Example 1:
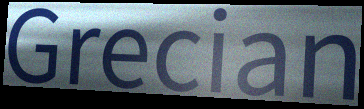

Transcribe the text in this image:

Grecian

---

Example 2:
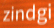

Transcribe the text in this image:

zindgi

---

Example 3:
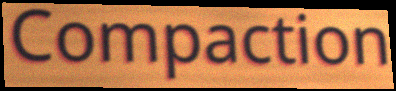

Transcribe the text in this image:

Compaction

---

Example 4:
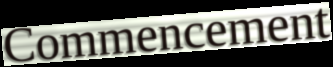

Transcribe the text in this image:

Commencement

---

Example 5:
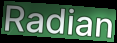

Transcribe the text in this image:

Radian